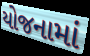
યોજનામાં